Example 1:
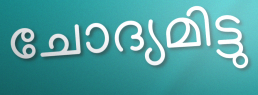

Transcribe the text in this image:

ചോദ്യമിട്ടു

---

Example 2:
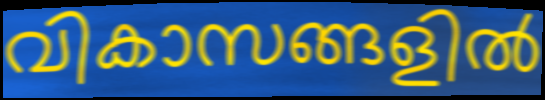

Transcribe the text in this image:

വികാസങ്ങളിൽ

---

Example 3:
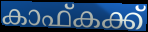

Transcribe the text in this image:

കാഫ്കക്ക്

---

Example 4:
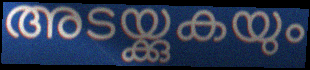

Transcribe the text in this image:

അടയ്ക്കുകയും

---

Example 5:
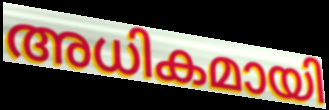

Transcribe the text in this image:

അധികമായി